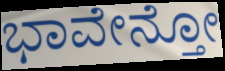
ಭಾವೇನ್ತೋ